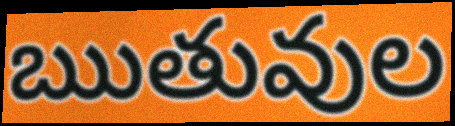
ఋతువుల